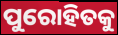
ପୁରୋହିତକୁ